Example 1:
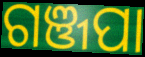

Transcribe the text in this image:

ଗଞ୍ଜପା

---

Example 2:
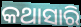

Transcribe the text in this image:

କଥାସାରି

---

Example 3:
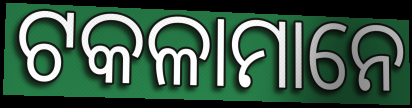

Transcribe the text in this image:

ଟକଳାମାନେ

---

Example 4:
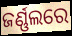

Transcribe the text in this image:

ଜର୍ଣ୍ଣଲରେ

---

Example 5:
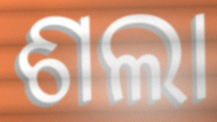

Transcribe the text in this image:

ଶଲା